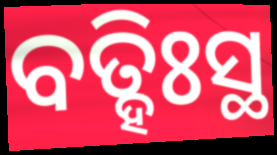
ବତ୍ହିଃସ୍ଥ